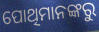
ପୋଥିମାନଙ୍କରୁ